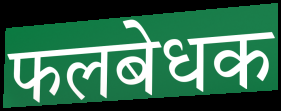
फलबेधक